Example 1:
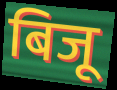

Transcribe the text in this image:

बिजू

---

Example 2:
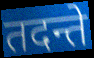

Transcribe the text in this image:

तदन्ते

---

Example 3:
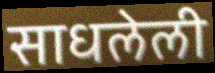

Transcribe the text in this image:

साधलेली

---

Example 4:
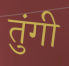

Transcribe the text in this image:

तुंगी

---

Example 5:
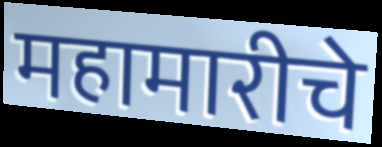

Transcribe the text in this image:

महामारीचे